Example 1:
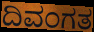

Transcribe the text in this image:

ದಿವಂಗತ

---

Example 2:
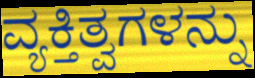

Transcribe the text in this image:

ವ್ಯಕ್ತಿತ್ವಗಳನ್ನು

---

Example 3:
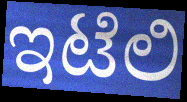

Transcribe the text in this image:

ಇಟೆಲಿ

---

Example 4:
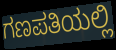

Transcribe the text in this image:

ಗಣಪತಿಯಲ್ಲಿ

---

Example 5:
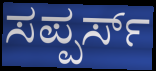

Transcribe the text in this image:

ಸಪ್ಪರ್ಸ್